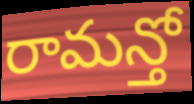
రామన్తో